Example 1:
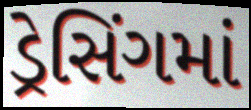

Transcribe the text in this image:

ડ્રેસિંગમાં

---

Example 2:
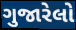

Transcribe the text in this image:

ગુજારેલો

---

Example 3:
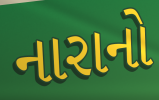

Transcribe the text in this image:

નારાનો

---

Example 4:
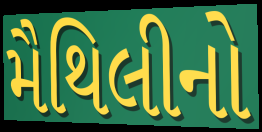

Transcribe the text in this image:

મૈથિલીનો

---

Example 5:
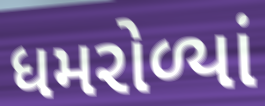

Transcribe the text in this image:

ધમરોળ્યાં